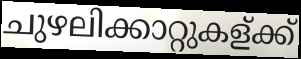
ചുഴലിക്കാറ്റുകള്ക്ക്